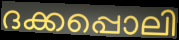
ദക്കപ്പൊലി